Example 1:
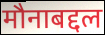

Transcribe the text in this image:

मौनाबद्दल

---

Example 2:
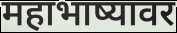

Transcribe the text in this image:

महाभाष्यावर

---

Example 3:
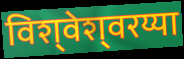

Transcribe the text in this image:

विश्वेश्वरय्या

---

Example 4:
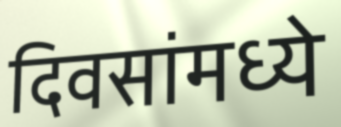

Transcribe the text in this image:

दिवसांमध्ये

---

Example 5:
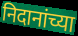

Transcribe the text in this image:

निदानांच्या